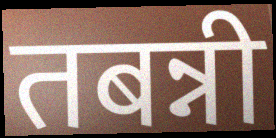
तबन्नी